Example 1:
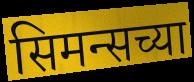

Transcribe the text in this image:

सिमन्सच्या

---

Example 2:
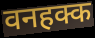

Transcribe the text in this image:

वनहक्क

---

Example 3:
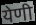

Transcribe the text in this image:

येणी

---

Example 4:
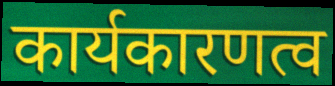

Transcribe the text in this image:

कार्यकारणत्व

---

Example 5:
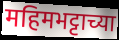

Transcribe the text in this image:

महिमभट्टाच्या